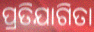
ପ୍ରତିଯାଗିତା